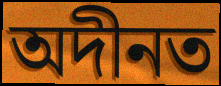
অদীনত